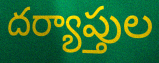
దర్యాప్తుల